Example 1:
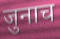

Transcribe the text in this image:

जुनाच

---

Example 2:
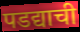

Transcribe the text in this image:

पडद्याची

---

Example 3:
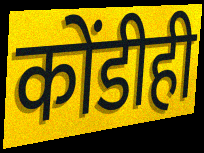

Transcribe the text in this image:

कोंडीही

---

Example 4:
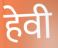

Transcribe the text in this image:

हेवी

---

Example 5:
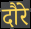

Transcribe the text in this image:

दौरे